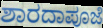
ಶಾರದಾಪೂಜೆ